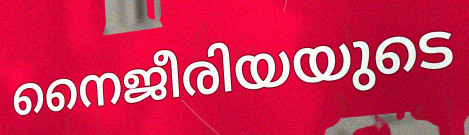
നൈജീരിയയുടെ